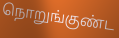
நொறுங்குண்ட